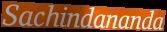
Sachindananda